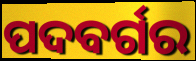
ପଦବର୍ଗର